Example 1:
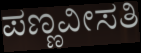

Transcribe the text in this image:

ಪಣ್ಣವೀಸತಿ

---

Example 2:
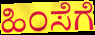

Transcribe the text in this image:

ಹಿಂಸೆಗೆ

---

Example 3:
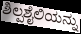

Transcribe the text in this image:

ಶಿಲ್ಪಶೈಲಿಯನ್ನು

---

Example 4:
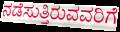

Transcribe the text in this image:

ನಡೆಸುತ್ತಿರುವವರಿಗೆ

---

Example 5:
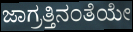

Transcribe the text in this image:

ಜಾಗ್ರತ್ತಿನಂತೆಯೇ